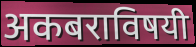
अकबराविषयी